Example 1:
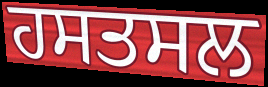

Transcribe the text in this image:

ਹਸਤਸਲ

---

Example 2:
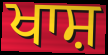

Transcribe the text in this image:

ਖਾਸ਼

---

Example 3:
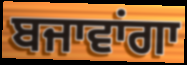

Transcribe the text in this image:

ਬਜਾਵਾਂਗਾ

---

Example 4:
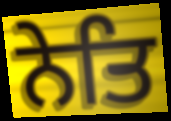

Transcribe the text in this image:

ਨੇਤਿ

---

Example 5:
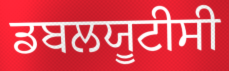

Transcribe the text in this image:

ਡਬਲਯੂਟੀਸੀ